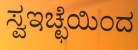
ಸ್ವಇಚ್ಛೆಯಿಂದ